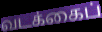
வடக்கைப்